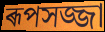
ৰূপসজ্জা